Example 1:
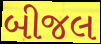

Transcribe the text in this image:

બીજલ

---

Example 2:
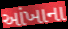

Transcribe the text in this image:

આંખાના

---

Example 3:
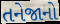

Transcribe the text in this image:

તનેજાનો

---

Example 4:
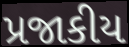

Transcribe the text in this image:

પ્રજાકીય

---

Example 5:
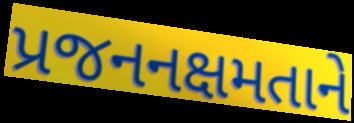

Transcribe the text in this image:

પ્રજનનક્ષમતાને